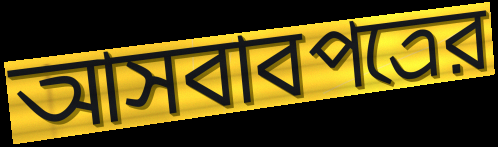
আসবাবপত্রের